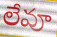
లేవూ